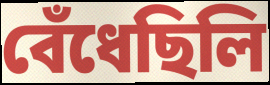
বেঁধেছিলি